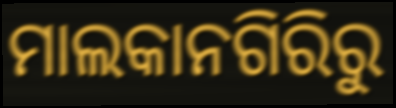
ମାଲକାନଗିରିରୁ